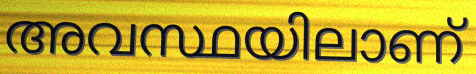
അവസ്ഥയിലാണ്